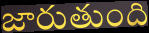
జారుతుంది